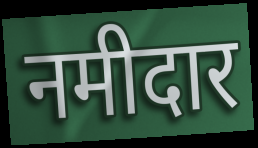
नमीदार